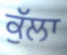
ਕੁੱਲਾ